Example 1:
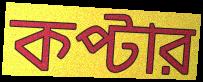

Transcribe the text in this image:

কপ্টার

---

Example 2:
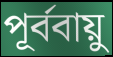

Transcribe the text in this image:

পূর্ববায়ু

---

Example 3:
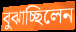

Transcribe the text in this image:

বুঝাচ্ছিলেন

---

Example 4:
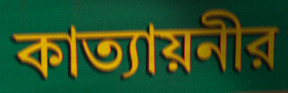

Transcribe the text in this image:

কাত্যায়নীর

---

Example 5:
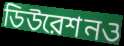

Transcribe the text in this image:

ডিউরেশনও